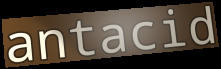
antacid